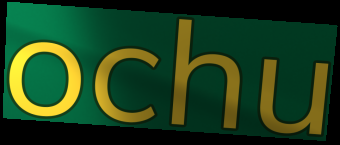
ochu